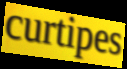
curtipes